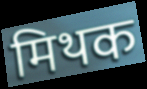
मिथक